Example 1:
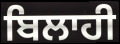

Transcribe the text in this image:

ਬਿਲਾਹੀ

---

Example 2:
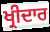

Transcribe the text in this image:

ਖ੍ਰੀਦਾਰ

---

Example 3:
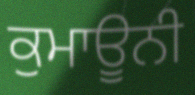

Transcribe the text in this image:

ਕੁਮਾਊਨੀ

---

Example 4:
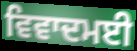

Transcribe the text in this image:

ਵਿਵਾਦਮਈ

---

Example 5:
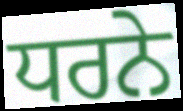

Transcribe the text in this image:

ਧਰਨੇ